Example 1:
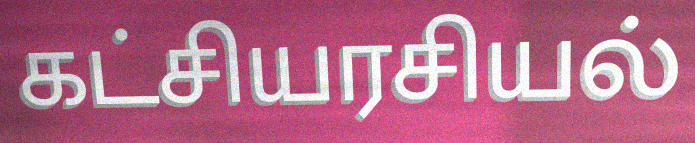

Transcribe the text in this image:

கட்சியரசியல்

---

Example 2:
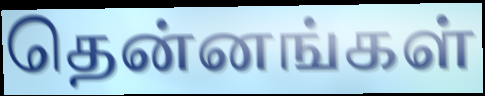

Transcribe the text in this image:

தென்னங்கள்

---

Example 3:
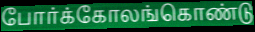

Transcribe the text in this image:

போர்க்கோலங்கொண்டு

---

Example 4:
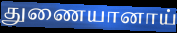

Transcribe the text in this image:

துணையானாய்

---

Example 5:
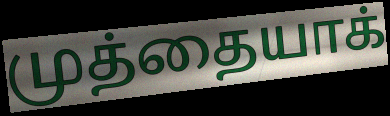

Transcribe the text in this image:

முத்தையாக்